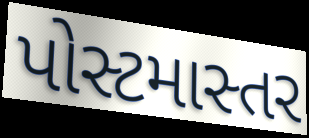
પોસ્ટમાસ્તર